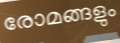
രോമങ്ങളും